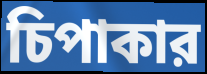
চিপাকার